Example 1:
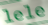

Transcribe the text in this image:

lele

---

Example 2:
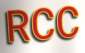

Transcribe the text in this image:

RCC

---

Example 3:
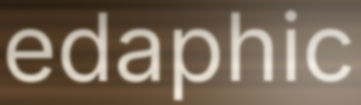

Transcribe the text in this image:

edaphic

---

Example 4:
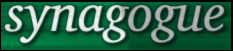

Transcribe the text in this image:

synagogue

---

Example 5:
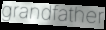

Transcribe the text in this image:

grandfather